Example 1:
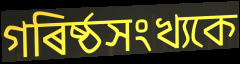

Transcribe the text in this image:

গৰিষ্ঠসংখ্যকে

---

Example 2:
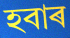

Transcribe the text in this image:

হবাৰ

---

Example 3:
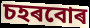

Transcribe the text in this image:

চহৰবোৰ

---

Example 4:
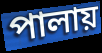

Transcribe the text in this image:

পালায়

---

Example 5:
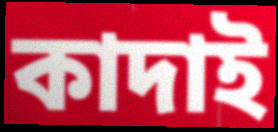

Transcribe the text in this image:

কাদাই